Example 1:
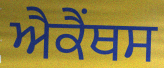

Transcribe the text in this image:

ਐਕੈਂਥਸ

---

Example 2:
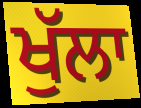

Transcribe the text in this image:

ਖੁੱਲਾ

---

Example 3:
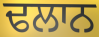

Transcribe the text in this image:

ਢਲਾਨ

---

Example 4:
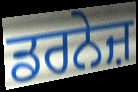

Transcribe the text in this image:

ਡਰਨੇਜ਼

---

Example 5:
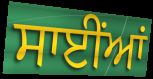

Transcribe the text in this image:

ਸਾਈਂਆਂ